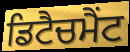
ਡਿਟੈਚਮੈਂਟ